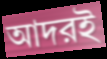
আদরই